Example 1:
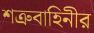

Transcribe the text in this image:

শত্রুবাহিনীর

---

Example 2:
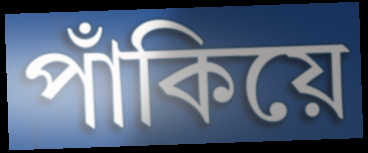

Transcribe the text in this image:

পাঁকিয়ে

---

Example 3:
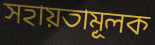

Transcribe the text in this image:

সহায়তামূলক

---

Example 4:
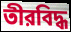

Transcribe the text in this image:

তীরবিদ্ধ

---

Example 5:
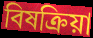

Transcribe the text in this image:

বিষক্রিয়া